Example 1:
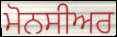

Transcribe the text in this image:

ਮੋਨਸੀਅਰ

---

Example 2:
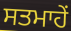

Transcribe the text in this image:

ਸਤਮਾਹੇਂ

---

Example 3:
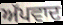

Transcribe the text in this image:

ਅੱਪਵਾਦ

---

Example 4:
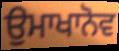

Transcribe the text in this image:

ਉਮਾਖਾਨੋਵ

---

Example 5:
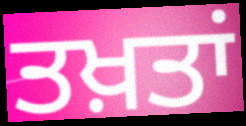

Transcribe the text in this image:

ਤਖ਼ਤਾਂ